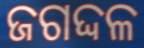
ଜଗଦ୍ଦଳ